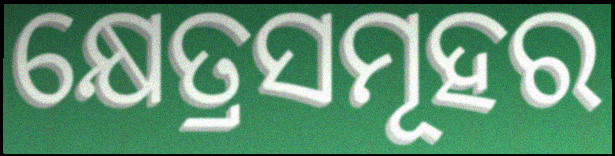
କ୍ଷେତ୍ରସମୂହର